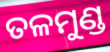
ତଳମୁଣ୍ଡ